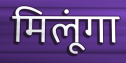
मिलूंगा